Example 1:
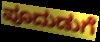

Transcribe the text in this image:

ಪೂದುಡುಗೆ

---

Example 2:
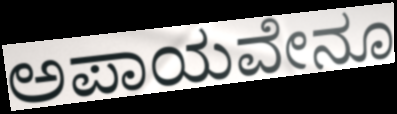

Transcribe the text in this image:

ಅಪಾಯವೇನೂ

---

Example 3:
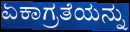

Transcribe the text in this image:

ಏಕಾಗ್ರತೆಯನ್ನು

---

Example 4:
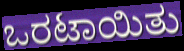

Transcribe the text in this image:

ಒರಟಾಯಿತು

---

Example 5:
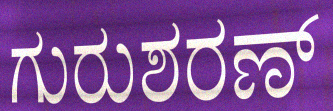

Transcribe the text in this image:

ಗುರುಶರಣ್